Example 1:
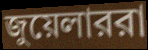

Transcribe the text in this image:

জুয়েলাররা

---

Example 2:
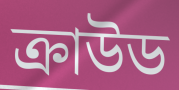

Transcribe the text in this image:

ক্রাউড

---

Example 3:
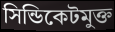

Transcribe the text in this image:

সিন্ডিকেটমুক্ত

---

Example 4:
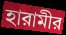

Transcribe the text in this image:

হারামীর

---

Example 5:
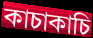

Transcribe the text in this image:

কাচাকাচি